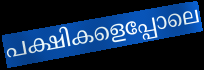
പക്ഷികളെപ്പോലെ